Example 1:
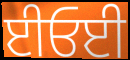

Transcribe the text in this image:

ਈਓਈ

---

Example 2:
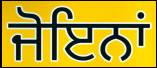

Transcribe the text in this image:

ਜੋਇਨਾਂ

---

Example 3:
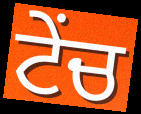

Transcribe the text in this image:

ਟੇਂਚ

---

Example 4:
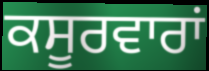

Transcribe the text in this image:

ਕਸੂਰਵਾਰਾਂ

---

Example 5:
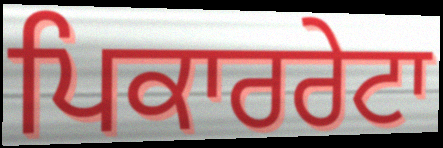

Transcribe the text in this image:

ਪਿਕਾਰਰੇਟਾ